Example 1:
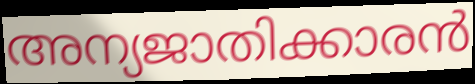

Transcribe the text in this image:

അന്യജാതിക്കാരൻ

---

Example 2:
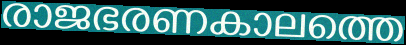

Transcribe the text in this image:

രാജഭരണകാലത്തെ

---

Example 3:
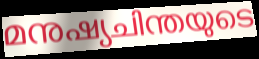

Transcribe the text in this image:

മനുഷ്യചിന്തയുടെ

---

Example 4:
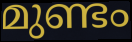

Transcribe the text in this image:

മുണ്ടം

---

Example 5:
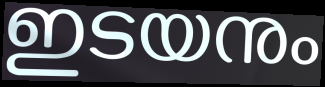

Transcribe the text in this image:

ഇടയനും